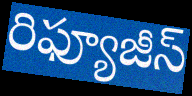
రిఫ్యూజీస్